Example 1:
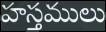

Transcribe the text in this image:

హస్తములు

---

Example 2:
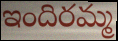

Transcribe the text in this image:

ఇందిరమ్మ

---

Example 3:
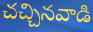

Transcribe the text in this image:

చచ్చినవాడి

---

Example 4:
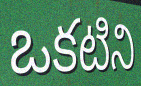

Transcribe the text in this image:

ఒకటిని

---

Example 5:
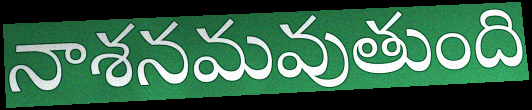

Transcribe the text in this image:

నాశనమవుతుంది